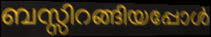
ബസ്സിറങ്ങിയപ്പോൾ